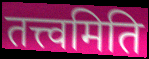
तत्त्वमिति